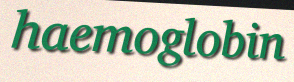
haemoglobin